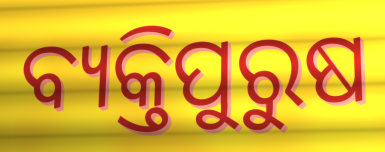
ବ୍ୟକ୍ତିପୁରୁଷ